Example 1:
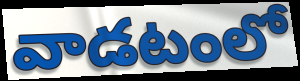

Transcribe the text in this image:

వాడటంలో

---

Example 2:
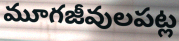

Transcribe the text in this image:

మూగజీవులపట్ల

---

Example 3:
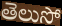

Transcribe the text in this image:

తెలుసో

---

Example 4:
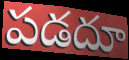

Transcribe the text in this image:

పడదూ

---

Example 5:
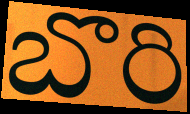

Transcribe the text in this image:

బొరి